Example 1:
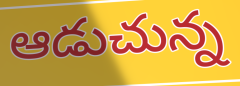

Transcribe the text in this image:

ఆడుచున్న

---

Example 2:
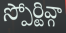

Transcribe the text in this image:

స్పోర్టివ్గా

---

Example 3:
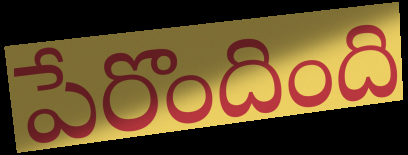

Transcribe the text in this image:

పేరొందింది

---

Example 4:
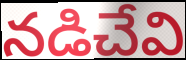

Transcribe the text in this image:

నడిచేవి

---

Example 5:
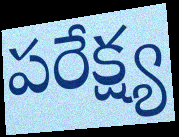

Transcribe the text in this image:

పరేక్ష్య